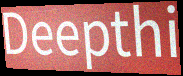
Deepthi